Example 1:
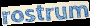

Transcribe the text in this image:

rostrum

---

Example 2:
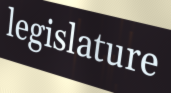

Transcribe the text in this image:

legislature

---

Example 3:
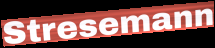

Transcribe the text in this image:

Stresemann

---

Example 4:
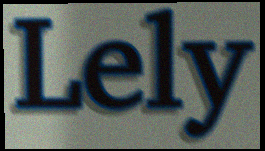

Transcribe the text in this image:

Lely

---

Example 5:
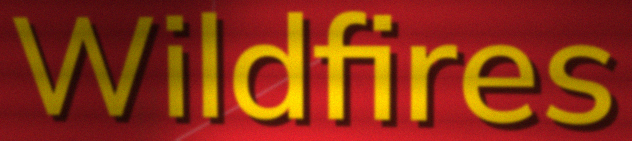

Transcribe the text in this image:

Wildfires